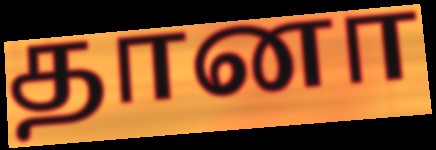
தானா